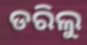
ଡରିଲୁ